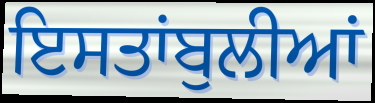
ਇਸਤਾਂਬੁਲੀਆਂ